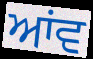
ਆਂਵ